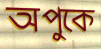
অপুকে